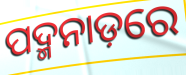
ପଦ୍ମନାଡ଼ରେ